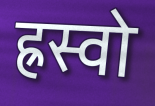
ह्रस्वो